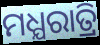
ମଧ୍ଯରାତ୍ରି